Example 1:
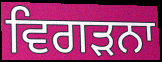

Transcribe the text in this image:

ਵਿਗੜਨਾ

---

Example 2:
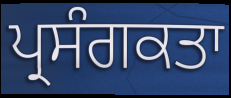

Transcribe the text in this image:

ਪ੍ਰਸੰਗਕਤਾ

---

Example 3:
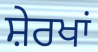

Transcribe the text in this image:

ਸ਼ੇਰਖਾਂ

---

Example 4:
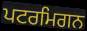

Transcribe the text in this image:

ਪਟਰਮਿਗਨ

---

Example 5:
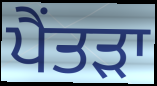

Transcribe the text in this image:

ਪੈਂਤੜਾ